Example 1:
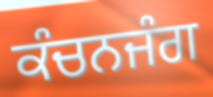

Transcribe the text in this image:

ਕੰਚਨਜੰਗ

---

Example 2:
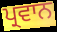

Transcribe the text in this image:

ਪ੍ਰਵਾਨ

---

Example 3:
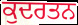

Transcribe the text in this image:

ਕੁਦਰਤਨ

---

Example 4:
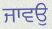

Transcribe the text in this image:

ਜਾਵਉ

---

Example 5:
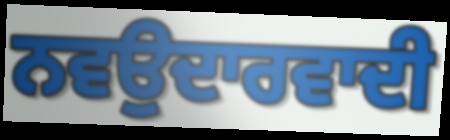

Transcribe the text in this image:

ਨਵਉਦਾਰਵਾਦੀ